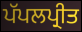
ਪੱਪਲਪ੍ਰੀਤ